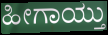
ಹೀಗಾಯ್ತು